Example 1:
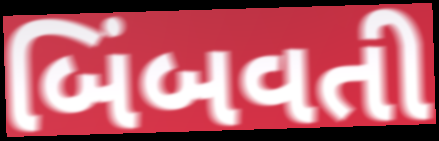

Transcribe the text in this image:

બિંબવતી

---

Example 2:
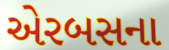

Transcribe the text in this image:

એરબસના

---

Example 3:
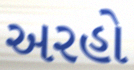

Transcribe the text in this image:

અરહો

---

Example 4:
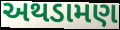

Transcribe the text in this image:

અથડામણ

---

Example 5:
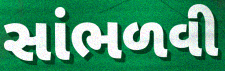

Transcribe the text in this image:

સાંભળવી